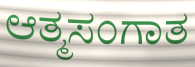
ಆತ್ಮಸಂಗಾತ